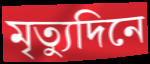
মৃত্যুদিনে